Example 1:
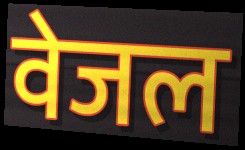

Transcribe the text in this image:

वेजल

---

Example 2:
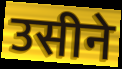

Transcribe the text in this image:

उसीने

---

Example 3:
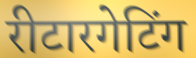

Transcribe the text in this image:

रीटारगेटिंग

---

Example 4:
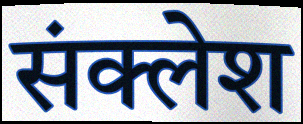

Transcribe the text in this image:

संक्लेश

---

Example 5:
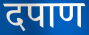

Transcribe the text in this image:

दपाण